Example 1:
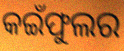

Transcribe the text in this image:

କଇଁଫୁଲର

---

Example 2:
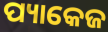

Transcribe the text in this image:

ପ୍ୟାକେଜ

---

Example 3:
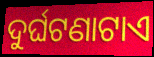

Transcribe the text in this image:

ଦୁର୍ଘଟଣାଟାଏ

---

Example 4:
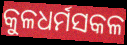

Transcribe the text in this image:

କୁଳଧର୍ମସକଳ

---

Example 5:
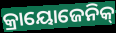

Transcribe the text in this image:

କ୍ରାୟୋଜେନିକ୍